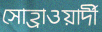
সোহ্রাওয়ার্দী